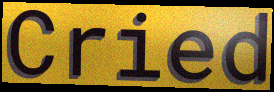
Cried